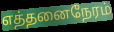
எத்தனைநேரம்